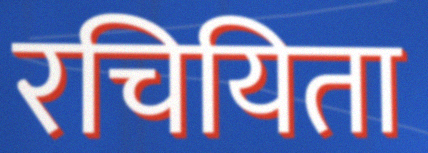
रचियिता